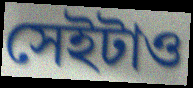
সেইটাও